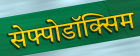
सेफ्पोडॉक्सिम